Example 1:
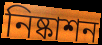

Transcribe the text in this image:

নিষ্কাশন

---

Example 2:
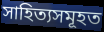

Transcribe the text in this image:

সাহিত্যসমূহত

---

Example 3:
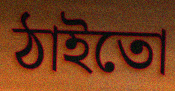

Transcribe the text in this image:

ঠাইতো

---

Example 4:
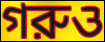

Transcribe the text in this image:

গৰুও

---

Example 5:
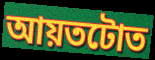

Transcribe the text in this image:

আয়তটোত